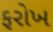
ફરોખ